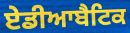
ਏਡੀਆਬੈਟਿਕ